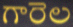
గారెల